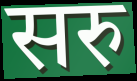
सरु